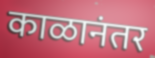
काळानंतर